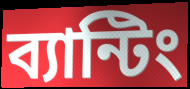
ব্যান্টিং